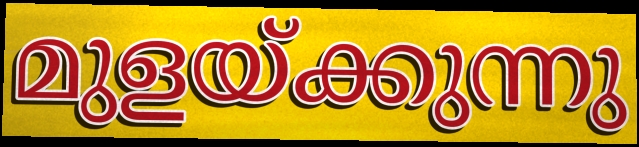
മുളയ്ക്കുന്നു